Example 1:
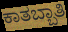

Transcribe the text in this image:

ಕಾತಬ್ಬಾತಿ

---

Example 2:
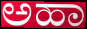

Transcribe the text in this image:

ಅಹಾ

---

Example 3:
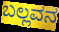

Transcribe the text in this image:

ಬಲ್ಲವನ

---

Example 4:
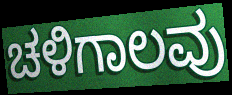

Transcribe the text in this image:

ಚಳಿಗಾಲವು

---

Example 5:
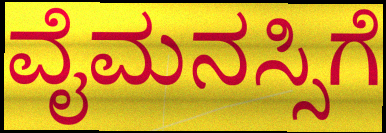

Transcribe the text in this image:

ವೈಮನಸ್ಸಿಗೆ